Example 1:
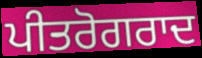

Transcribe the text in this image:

ਪੀਤਰੋਗਰਾਦ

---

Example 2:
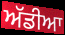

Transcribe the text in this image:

ਅੱਡੀਆ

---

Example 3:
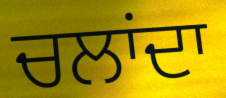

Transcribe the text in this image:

ਚਲਾਂਦਾ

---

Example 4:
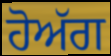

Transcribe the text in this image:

ਹੋਅੱਗ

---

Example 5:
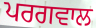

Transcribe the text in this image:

ਪਰਗਵਾਲ